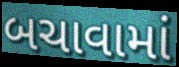
બચાવામાં